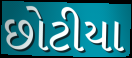
છોટીયા